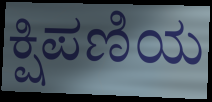
ಕ್ಷಿಪಣಿಯ